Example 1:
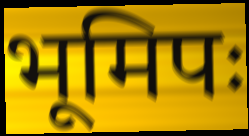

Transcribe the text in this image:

भूमिपः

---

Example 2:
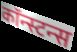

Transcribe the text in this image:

कॉन्स्टन्स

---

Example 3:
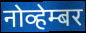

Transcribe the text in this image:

नोव्हेम्बर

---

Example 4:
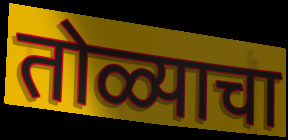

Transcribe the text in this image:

तोळ्याचा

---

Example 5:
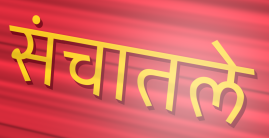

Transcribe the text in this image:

संचातले